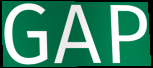
GAP